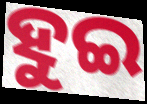
ହୁଇ